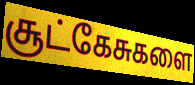
சூட்கேசுகளை